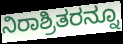
ನಿರಾಶ್ರಿತರನ್ನೂ